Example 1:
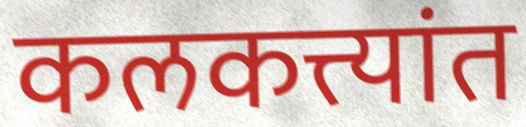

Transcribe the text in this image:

कलकत्त्यांत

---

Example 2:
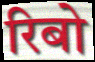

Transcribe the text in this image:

रिबो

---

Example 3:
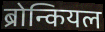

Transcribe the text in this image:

ब्रोन्कियल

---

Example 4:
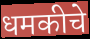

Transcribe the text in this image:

धमकीचे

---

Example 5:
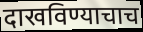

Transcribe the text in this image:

दाखविण्याचाच